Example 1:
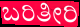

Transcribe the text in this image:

ಬರಿತೀರಿ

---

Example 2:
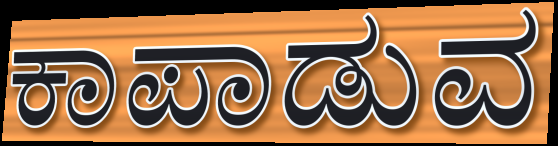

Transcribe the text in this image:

ಕಾಪಾಡುವ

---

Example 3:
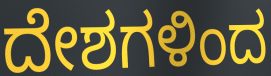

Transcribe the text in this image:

ದೇಶಗಳಿಂದ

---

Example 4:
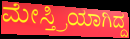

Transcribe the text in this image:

ಮೇಸ್ತ್ರಿಯಾಗಿದ್ದ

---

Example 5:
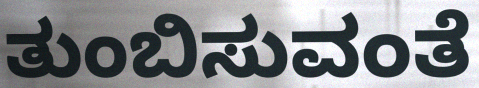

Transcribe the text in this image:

ತುಂಬಿಸುವಂತೆ